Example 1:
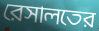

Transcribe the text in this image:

রেসালতের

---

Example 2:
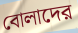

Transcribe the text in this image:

বোলাদের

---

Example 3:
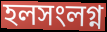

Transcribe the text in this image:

হলসংলগ্ন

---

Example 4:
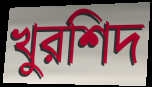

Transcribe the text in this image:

খুরশিদ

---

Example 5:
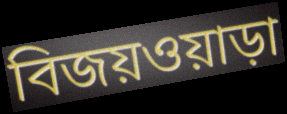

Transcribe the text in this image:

বিজয়ওয়াড়া